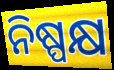
ନିଷ୍ପକ୍ଷ